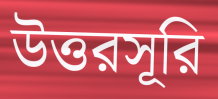
উত্তরসূরি